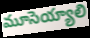
మూసెయ్యాలి